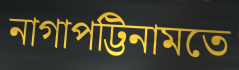
নাগাপট্টিনামতে